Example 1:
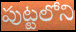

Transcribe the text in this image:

పుట్టలోని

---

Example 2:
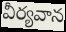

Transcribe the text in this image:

వీర్యవాన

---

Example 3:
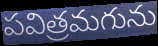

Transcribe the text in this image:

పవిత్రమగును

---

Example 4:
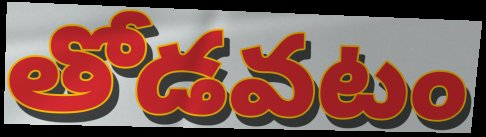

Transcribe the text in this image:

తోడవటం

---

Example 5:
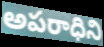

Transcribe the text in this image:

అపరాధిని